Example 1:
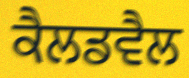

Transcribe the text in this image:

ਕੈਲਡਵੈਲ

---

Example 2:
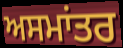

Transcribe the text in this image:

ਅਸਮਾਂਤਰ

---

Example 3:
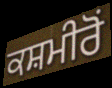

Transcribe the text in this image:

ਕਸ਼ਮੀਰੋਂ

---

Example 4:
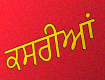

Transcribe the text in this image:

ਕਸਰੀਆਂ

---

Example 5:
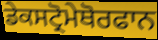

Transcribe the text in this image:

ਡੇਕਸਟ੍ਰੋਮੇਥੋਰਫਾਨ